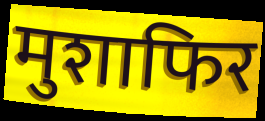
मुशाफिर